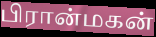
பிரான்மகன்